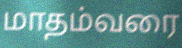
மாதம்வரை